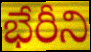
భేరీని